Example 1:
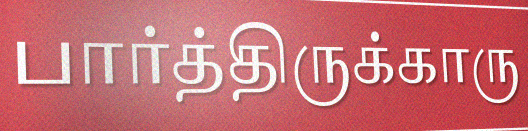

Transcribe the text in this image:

பார்த்திருக்காரு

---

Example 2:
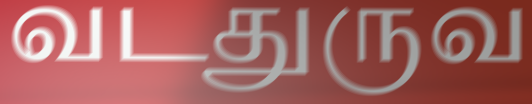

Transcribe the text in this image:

வடதுருவ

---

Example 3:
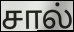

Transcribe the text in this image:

சால்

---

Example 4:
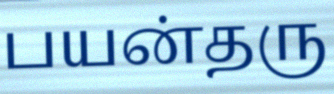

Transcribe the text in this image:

பயன்தரு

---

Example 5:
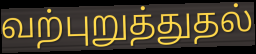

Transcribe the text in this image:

வற்புறுத்துதல்